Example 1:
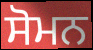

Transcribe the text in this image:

ਸੋਮਨ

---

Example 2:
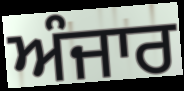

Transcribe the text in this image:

ਅੰਜਾਰ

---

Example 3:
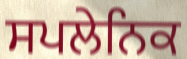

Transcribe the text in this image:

ਸਪਲੇਨਿਕ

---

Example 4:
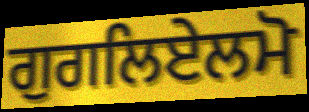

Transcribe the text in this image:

ਗੁਗਲਿਏਲਮੋ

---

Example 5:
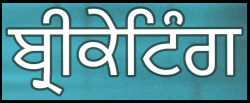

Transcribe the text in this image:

ਬ੍ਰੀਕੇਟਿੰਗ